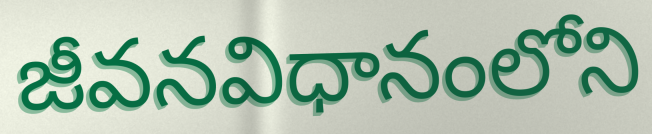
జీవనవిధానంలోని